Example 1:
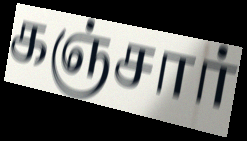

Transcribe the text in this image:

கஞ்சார்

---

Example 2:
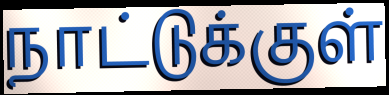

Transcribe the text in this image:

நாட்டுக்குள்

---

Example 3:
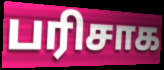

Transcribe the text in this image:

பரிசாக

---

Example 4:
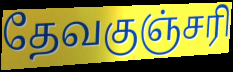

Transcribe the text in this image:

தேவகுஞ்சரி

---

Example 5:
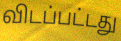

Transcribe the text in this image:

விடப்பட்டது